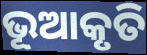
ଭୂଆକୃତି